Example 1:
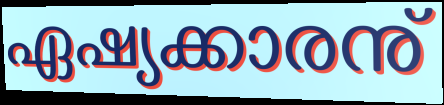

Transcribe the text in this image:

ഏഷ്യക്കാരനു്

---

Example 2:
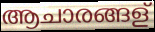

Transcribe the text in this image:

ആചാരങ്ങള്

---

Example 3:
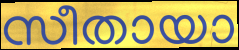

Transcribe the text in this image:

സീതായാ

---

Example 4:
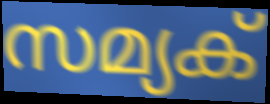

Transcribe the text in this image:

സമ്യക്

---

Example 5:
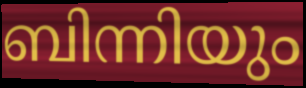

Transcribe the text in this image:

ബിന്നിയും